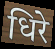
धिरे